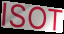
ISOT